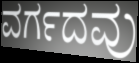
ವರ್ಗದವು